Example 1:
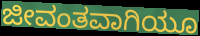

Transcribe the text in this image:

ಜೀವಂತವಾಗಿಯೂ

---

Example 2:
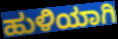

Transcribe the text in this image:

ಹುಳಿಯಾಗಿ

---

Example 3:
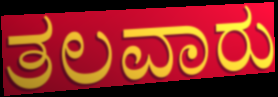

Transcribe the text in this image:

ತಲವಾರು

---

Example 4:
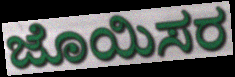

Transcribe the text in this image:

ಜೊಯಿಸರ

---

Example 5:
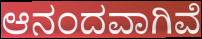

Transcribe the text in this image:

ಆನಂದವಾಗಿವೆ